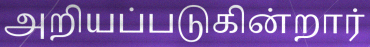
அறியப்படுகின்றார்